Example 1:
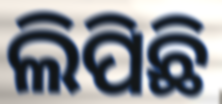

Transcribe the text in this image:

ଲିପିଛି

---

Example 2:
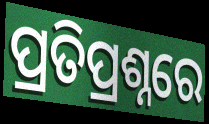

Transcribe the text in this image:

ପ୍ରତିପ୍ରଶ୍ନରେ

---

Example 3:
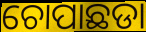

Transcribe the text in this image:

ଚୋପାଛଡା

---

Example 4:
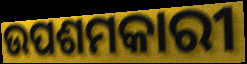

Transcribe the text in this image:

ଉପଶମକାରୀ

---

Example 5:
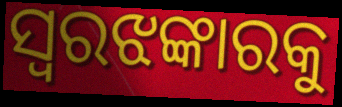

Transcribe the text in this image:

ସ୍ୱରଝଙ୍କାରକୁ